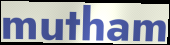
mutham